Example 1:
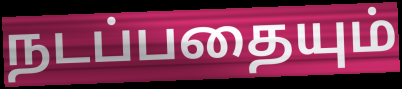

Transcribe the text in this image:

நடப்பதையும்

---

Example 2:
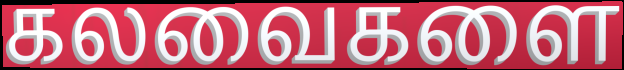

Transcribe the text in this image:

கலவைகளை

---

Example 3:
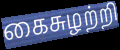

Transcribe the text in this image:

கைசுழற்றி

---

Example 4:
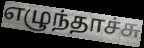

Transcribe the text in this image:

எழுந்தாச்சு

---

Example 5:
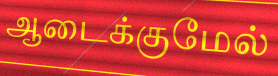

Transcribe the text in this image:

ஆடைக்குமேல்